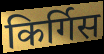
किर्गिस